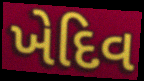
ખેદિવ